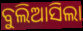
ବୁଲିଆସିଲା